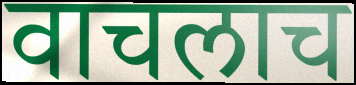
वाचलाच